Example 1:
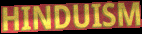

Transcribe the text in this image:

HINDUISM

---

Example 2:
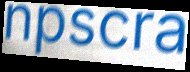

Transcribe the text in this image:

npscra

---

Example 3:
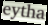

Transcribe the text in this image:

eytha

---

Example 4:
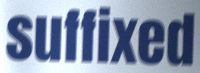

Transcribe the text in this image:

suffixed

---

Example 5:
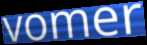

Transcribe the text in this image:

vomer